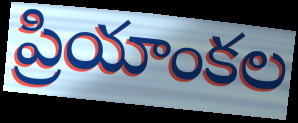
ప్రియాంకల